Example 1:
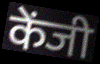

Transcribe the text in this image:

केंजी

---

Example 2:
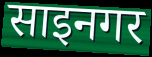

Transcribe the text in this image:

साइनगर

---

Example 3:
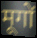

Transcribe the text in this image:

मूगों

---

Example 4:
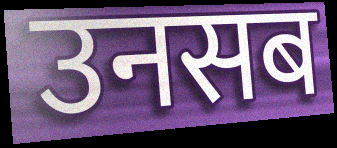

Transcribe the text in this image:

उनसब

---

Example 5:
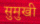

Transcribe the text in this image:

सुमुखी